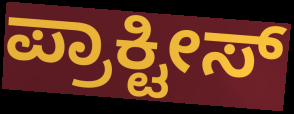
ಪ್ರಾಕ್ಟೀಸ್